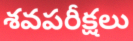
శవపరీక్షలు